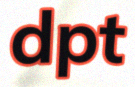
dpt